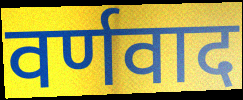
वर्णवाद